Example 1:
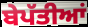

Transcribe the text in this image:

ਬੇਪੱਤੀਆਂ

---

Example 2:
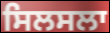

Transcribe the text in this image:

ਸਿਲਸਲਾ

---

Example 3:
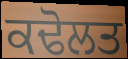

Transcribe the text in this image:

ਕਢੋਲਤ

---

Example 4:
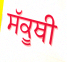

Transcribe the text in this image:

ਸੱਕੂਥੀ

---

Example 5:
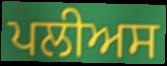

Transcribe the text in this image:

ਪਲੀਅਸ